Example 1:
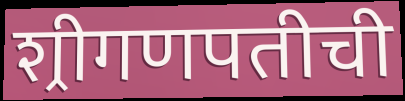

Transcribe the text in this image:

श्रीगणपतीची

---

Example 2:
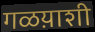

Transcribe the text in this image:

गळय़ाशी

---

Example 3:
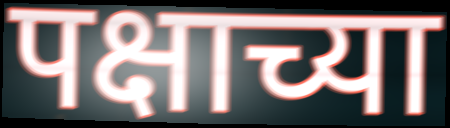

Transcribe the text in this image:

पक्षाच्या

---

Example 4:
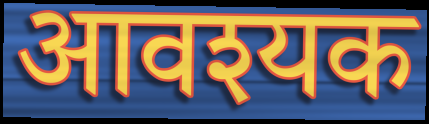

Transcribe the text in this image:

आवश्यक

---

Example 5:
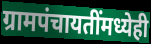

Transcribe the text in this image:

ग्रामपंचायतींमध्येही